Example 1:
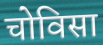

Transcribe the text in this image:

चोविसा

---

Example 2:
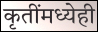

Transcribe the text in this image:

कृतींमध्येही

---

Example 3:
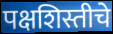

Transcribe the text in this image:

पक्षशिस्तीचे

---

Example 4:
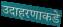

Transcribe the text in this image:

उदाहरणाकडे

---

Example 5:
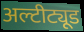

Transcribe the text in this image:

अल्टीट्यूड